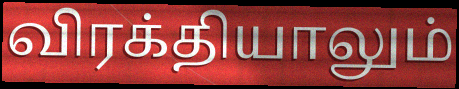
விரக்தியாலும்